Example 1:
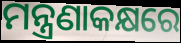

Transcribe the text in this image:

ମନ୍ତ୍ରଣାକକ୍ଷରେ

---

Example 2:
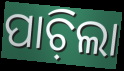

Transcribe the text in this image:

ପାଚ଼ିଲା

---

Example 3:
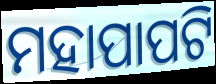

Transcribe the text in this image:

ମହାପାପଟି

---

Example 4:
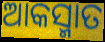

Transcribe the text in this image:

ଆକସ୍ମାତ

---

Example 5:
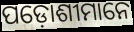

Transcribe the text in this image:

ପଡ଼ୋଶୀମାନେ